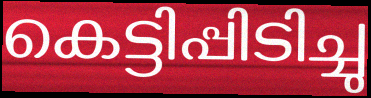
കെട്ടിപ്പിടിച്ചു